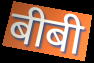
बीबी